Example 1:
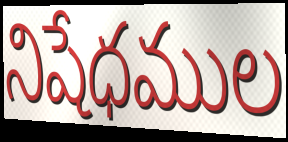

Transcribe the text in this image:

నిషేధముల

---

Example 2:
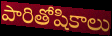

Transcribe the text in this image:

పారితోషికాలు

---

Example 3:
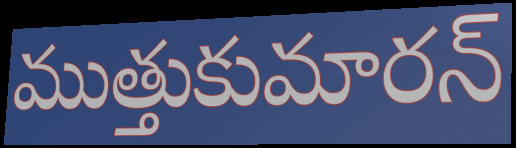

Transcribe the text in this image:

ముత్తుకుమారన్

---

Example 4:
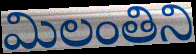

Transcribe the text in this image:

మిలంతిని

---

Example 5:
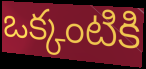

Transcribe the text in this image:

ఒక్కంటికి